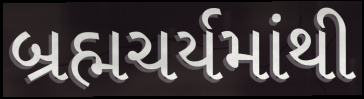
બ્રહ્મચર્યમાંથી